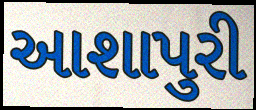
આશાપુરી